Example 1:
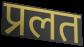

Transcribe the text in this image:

प्रलत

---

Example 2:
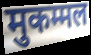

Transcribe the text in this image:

मुकम्मल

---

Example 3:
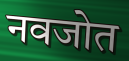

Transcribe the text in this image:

नवजोत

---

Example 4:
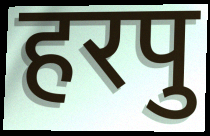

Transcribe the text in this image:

हरपु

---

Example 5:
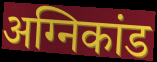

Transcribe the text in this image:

अग्निकांड